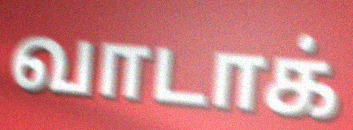
வாடாக்